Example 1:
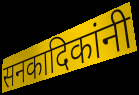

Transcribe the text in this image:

सनकादिकांनी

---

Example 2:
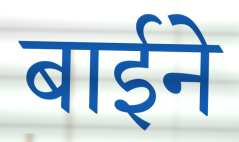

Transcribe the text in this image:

बाईने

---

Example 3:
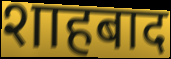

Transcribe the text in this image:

शाहबाद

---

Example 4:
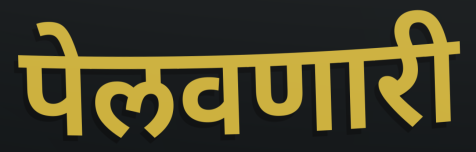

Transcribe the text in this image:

पेलवणारी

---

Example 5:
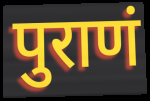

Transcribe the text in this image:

पुराणं